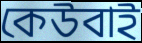
কেউবাই